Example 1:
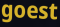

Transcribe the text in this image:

goest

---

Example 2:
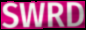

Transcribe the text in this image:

SWRD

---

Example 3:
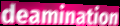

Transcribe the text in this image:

deamination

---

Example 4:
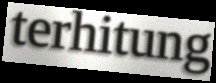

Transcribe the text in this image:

terhitung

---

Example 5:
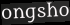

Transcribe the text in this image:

ongsho